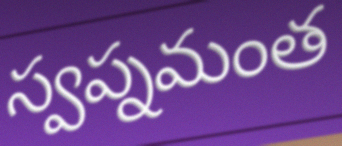
స్వప్నమంత